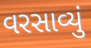
વરસાવ્યું